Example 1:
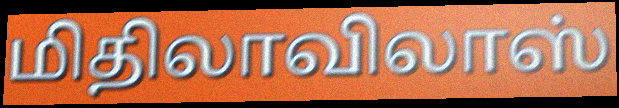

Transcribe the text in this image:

மிதிலாவிலாஸ்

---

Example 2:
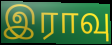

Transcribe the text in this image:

இராவு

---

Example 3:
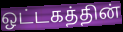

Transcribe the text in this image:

ஒட்டகத்தின்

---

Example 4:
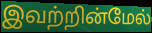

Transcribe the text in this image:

இவற்றின்மேல்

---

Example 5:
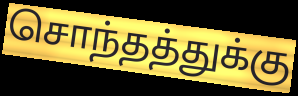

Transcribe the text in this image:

சொந்தத்துக்கு